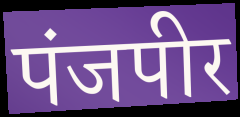
पंजपीर